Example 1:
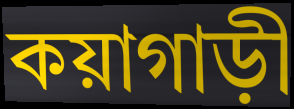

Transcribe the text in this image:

কয়াগাড়ী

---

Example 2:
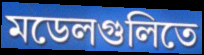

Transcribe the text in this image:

মডেলগুলিতে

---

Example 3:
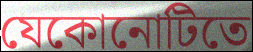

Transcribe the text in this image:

যেকোনোটিতে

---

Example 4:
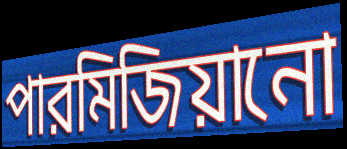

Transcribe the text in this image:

পারমিজিয়ানো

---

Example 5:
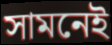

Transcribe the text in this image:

সামনেই